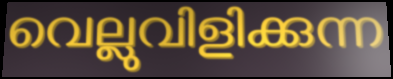
വെല്ലുവിളിക്കുന്ന